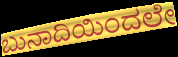
ಬುನಾದಿಯಿಂದಲೇ